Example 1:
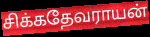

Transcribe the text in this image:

சிக்கதேவராயன்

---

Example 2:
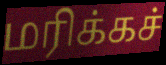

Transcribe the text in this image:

மரிக்கச்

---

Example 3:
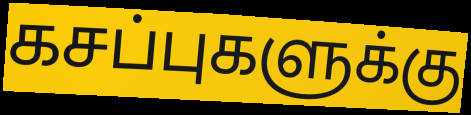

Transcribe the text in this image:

கசப்புகளுக்கு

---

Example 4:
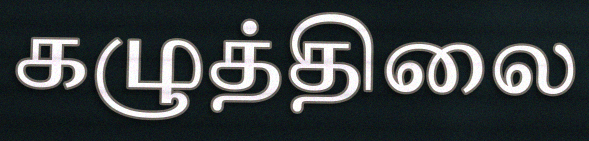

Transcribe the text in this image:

கழுத்திலை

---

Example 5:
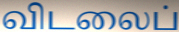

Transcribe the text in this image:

விடலைப்